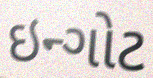
ઇન્ગોટ